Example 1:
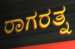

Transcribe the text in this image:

ರಾಗರತ್ನ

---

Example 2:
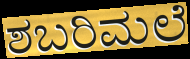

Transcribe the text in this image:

ಶಬರಿಮಲೆ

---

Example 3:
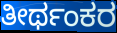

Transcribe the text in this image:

ತೀರ್ಥಂಕರ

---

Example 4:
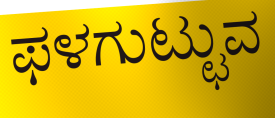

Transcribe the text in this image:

ಫಳಗುಟ್ಟುವ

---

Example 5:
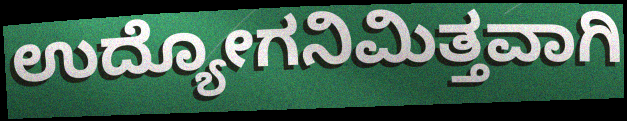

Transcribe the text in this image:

ಉದ್ಯೋಗನಿಮಿತ್ತವಾಗಿ